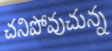
చనిపోవుచున్న